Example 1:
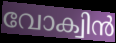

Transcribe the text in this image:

വോക്വിൻ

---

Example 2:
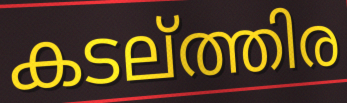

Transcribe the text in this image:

കടല്ത്തിര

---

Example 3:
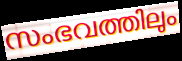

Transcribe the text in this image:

സംഭവത്തിലും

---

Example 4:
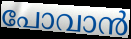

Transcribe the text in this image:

പോവാൻ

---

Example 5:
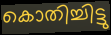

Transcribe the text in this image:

കൊതിച്ചിട്ടു